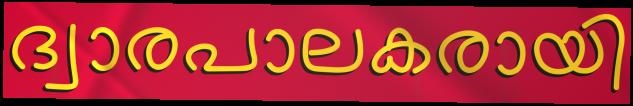
ദ്വാരപാലകരായി